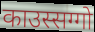
काउस्सग्गो